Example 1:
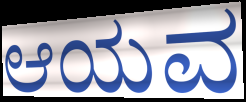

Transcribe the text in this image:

ಆಯವ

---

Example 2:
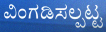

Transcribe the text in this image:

ವಿಂಗಡಿಸಲ್ಪಟ್ಟ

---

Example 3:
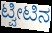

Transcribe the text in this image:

ಟ್ವೀಟಿನ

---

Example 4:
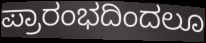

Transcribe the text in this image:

ಪ್ರಾರಂಭದಿಂದಲೂ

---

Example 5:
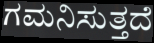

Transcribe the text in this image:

ಗಮನಿಸುತ್ತದೆ